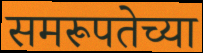
समरूपतेच्या